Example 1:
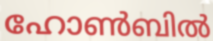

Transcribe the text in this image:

ഹോൺബിൽ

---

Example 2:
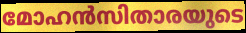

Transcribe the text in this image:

മോഹൻസിതാരയുടെ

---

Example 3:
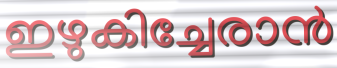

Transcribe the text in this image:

ഇഴുകിച്ചേരാൻ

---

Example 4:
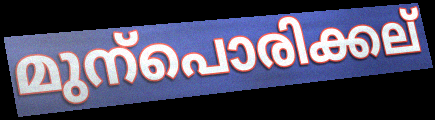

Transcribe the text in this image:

മുന്പൊരിക്കല്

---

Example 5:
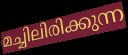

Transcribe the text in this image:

മച്ചിലിരിക്കുന്ന